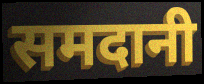
समदानी